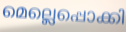
മെല്ലെപ്പൊക്കി